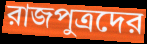
রাজপুত্রদের